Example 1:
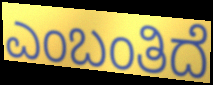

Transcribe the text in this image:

ಎಂಬಂತಿದೆ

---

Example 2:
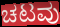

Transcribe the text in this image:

ಚಟವು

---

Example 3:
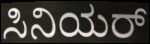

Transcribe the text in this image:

ಸಿನಿಯರ್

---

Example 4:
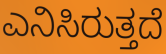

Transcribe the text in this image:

ಎನಿಸಿರುತ್ತದೆ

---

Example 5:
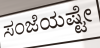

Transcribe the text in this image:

ಸಂಜೆಯಷ್ಟೇ